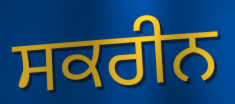
ਸਕਰੀਨ